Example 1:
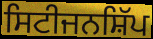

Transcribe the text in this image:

ਸਿਟੀਜਨਸ਼ਿੱਪ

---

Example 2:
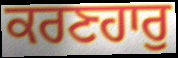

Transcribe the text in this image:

ਕਰਣਹਾਰੁ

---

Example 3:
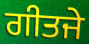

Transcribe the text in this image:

ਗੀਤਜੇ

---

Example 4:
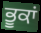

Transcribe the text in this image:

ਭੂਕਾਂ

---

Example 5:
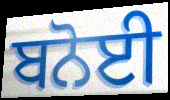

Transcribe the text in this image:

ਬਨੋਈ